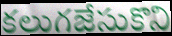
కలుగజేసుకొని